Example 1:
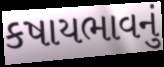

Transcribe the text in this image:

કષાયભાવનું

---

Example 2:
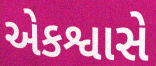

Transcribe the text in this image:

એકશ્વાસે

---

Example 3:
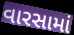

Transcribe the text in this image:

વારસામાં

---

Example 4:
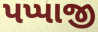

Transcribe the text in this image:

પપ્પાજી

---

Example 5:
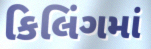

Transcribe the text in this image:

કિલિંગમાં